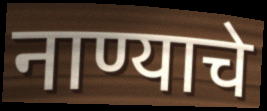
नाण्याचे